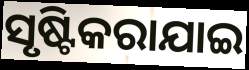
ସୃଷ୍ଟିକରାଯାଇ